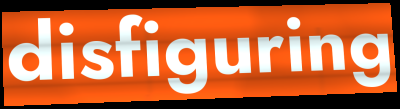
disfiguring